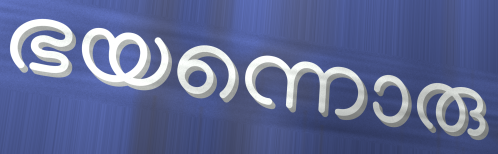
ഭയന്നൊരു